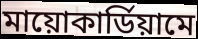
মায়োকার্ডিয়ামে